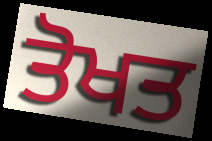
ਤੋਖਤ